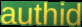
authid